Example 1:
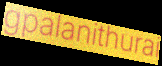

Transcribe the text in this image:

gpalanithurai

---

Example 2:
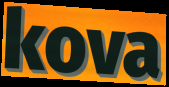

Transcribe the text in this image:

kova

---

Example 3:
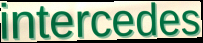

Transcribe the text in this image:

intercedes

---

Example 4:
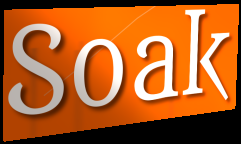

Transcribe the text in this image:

Soak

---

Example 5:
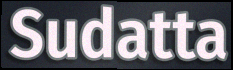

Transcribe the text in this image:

Sudatta